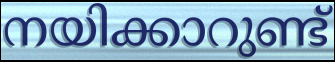
നയിക്കാറുണ്ട്